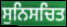
ਸੁਨਿਸਚਿਤ